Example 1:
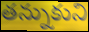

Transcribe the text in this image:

తన్నుకుని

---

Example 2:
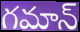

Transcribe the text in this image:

గమాన్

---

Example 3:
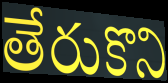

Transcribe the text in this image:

తేరుకొని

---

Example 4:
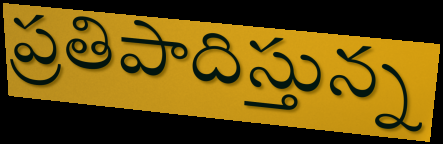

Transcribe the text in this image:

ప్రతిపాదిస్తున్న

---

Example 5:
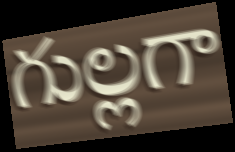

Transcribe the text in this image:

గుల్లగా